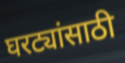
घरट्यांसाठी